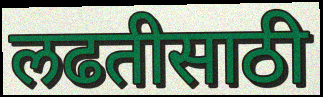
लढतीसाठी